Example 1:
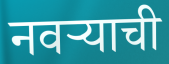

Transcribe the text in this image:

नवऱ्याची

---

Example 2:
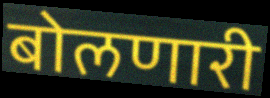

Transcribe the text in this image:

बोलणारी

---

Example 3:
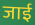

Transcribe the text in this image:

जाई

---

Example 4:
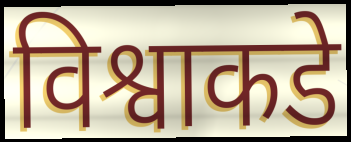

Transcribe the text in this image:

विश्वाकडे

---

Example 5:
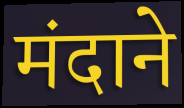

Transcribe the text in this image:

मंदाने